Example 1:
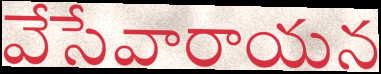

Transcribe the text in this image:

వేసేవారాయన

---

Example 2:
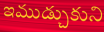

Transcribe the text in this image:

ఇముడ్చుకుని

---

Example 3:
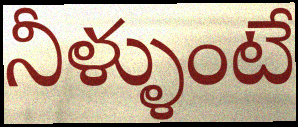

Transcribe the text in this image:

నీళ్ళుంటే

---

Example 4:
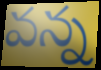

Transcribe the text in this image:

వన్న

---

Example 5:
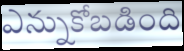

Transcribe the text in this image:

ఎన్నుకోబడింది